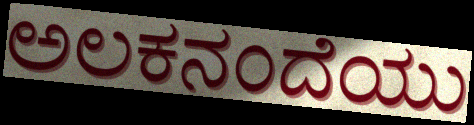
ಅಲಕನಂದೆಯು